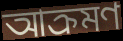
আক্রমণ